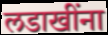
लडाखींना